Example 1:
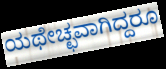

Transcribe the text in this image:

ಯಥೇಚ್ಛವಾಗಿದ್ದರೂ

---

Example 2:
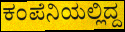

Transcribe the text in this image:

ಕಂಪೆನಿಯಲ್ಲಿದ್ದ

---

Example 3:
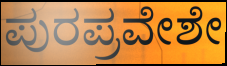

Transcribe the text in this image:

ಪುರಪ್ರವೇಶೇ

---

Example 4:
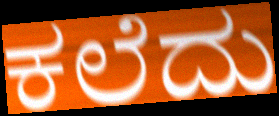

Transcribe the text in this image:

ಕಲೆದು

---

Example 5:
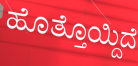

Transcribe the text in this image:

ಹೊತ್ತೊಯ್ದಿದೆ